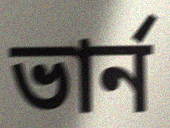
ভার্ন